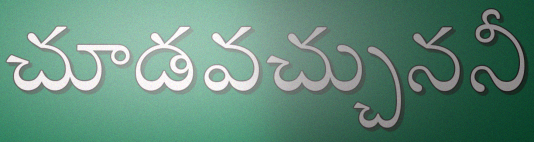
చూడవచ్చుననీ